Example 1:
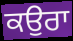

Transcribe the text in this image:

ਕਉਰਾ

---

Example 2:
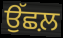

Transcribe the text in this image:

ਉੱਛਲ਼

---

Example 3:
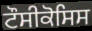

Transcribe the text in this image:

ਟੌਸੀਕੋਸਿਸ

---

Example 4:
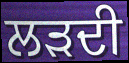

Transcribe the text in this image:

ਲੜਦੀ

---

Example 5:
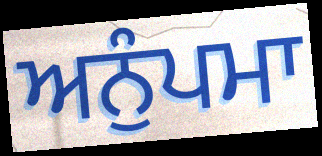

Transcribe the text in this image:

ਅਨੁੰਪਮਾ